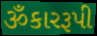
ૐકારરૂપી